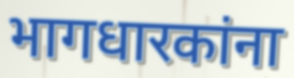
भागधारकांना